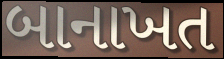
બાનાખત